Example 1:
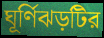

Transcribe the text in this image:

ঘূর্ণিঝড়টির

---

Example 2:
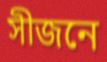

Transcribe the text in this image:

সীজনে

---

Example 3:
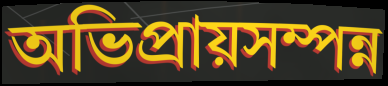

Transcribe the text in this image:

অভিপ্রায়সম্পন্ন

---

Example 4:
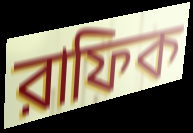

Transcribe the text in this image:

রাফিক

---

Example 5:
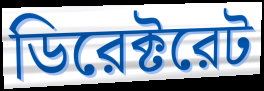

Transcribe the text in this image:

ডিরেক্টরেট